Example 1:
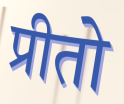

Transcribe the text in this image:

प्रीतो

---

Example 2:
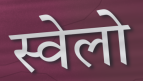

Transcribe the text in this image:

स्वेलो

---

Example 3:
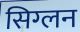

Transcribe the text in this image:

सिग्‍लन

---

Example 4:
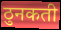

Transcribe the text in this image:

ठुनकती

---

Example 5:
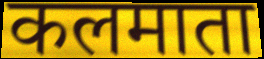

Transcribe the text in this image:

कलमाता